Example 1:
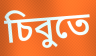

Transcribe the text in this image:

চিবুতে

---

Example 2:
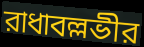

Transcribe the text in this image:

রাধাবল্লভীর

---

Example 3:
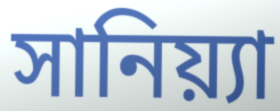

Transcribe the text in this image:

সানিয়্যা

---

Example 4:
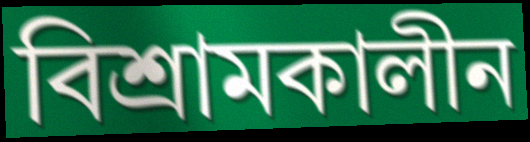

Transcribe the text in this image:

বিশ্রামকালীন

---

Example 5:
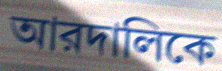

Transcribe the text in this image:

আরদালিকে